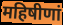
महिषीणां